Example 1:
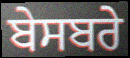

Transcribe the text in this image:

ਬੇਸਬਰੇ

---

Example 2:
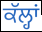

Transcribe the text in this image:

ਕੱਲ੍ਹਾਂ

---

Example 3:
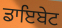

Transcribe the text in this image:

ਡਾਇਬੇਟ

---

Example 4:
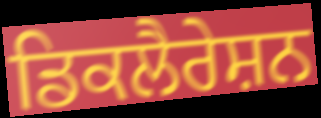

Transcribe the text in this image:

ਡਿਕਲੈਰੇਸ਼ਨ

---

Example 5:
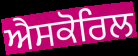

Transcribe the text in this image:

ਐਸਕੋਰਿਲ